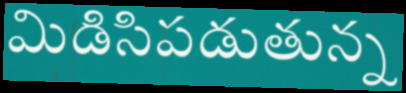
మిడిసిపడుతున్న